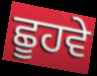
ਛੂਹਵੇ